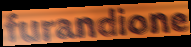
furandione